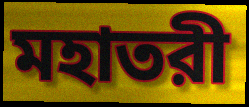
মহাতরী